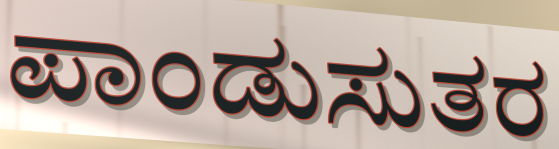
ಪಾಂಡುಸುತರ